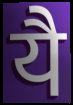
यै